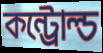
কন্ট্রোল্ড